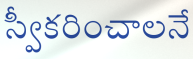
స్వీకరించాలనే